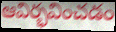
ఆవిర్భవించడం